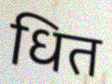
धित